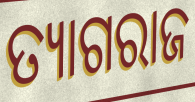
ତ୍ୟାଗରାଜ